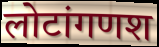
लोटांगणश